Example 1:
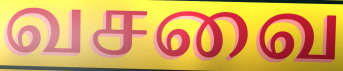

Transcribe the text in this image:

வசவை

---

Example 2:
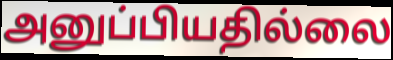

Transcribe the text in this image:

அனுப்பியதில்லை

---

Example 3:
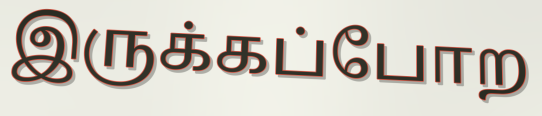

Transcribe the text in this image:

இருக்கப்போற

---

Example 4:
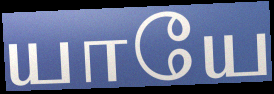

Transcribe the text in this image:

யாயே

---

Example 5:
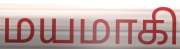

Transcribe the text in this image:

மயமாகி